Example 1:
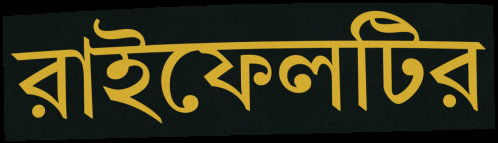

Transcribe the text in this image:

রাইফেলটির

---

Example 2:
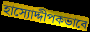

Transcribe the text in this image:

হাস্যোদ্দীপকভাবে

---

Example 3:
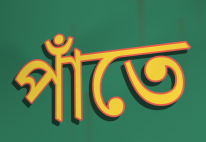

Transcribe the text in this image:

পাঁতে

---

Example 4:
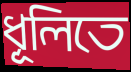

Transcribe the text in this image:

ধূলিতে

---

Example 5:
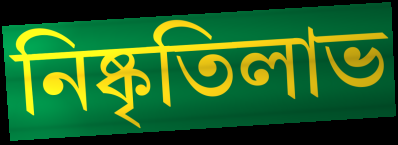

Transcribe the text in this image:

নিষ্কৃতিলাভ